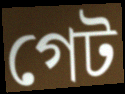
গেট